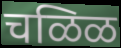
चळिळ